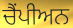
ਚੈਂਪੀਅਨ